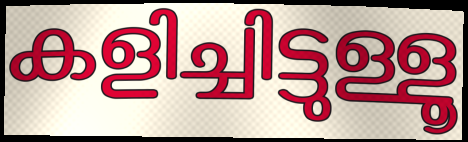
കളിച്ചിട്ടുള്ളൂ